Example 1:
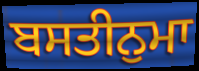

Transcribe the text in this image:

ਬਸਤੀਨੁਮਾ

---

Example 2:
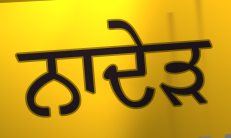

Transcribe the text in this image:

ਨਾਦੇੜ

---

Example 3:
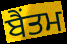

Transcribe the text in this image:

ਬੈਂਤਮ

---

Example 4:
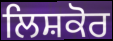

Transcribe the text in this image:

ਲਿਸ਼ਕੋਰ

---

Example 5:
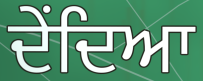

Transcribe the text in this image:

ਦੇਂਦਿਆ